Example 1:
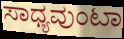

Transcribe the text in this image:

ಸಾಧ್ಯವುಂಟಾ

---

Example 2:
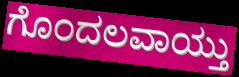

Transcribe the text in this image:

ಗೊಂದಲವಾಯ್ತು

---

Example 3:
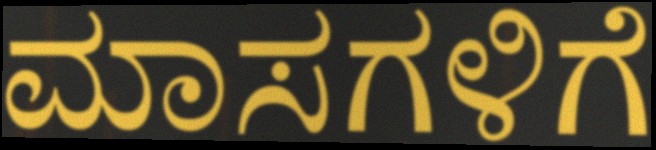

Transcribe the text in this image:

ಮಾಸಗಳಿಗೆ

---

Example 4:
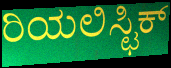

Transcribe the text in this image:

ರಿಯಲಿಸ್ಟಿಕ್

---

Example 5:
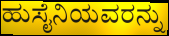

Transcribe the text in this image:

ಹುಸೈನಿಯವರನ್ನು